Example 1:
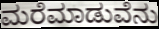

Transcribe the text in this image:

ಮರೆಮಾಡುವೆನು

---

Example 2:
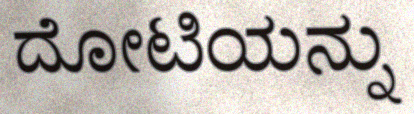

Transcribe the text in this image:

ದೋಟಿಯನ್ನು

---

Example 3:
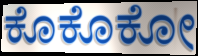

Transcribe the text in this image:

ಕೊಕೊಕೋ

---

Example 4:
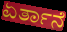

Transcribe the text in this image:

ಏರ್ತಾನೆ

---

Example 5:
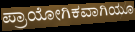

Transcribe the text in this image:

ಪ್ರಾಯೋಗಿಕವಾಗಿಯೂ